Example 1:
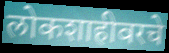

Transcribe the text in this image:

लोकशाहीवरचे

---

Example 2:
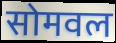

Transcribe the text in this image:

सोमवल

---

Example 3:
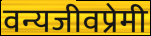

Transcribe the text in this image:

वन्यजीवप्रेमी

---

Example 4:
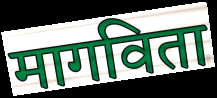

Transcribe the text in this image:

मागविता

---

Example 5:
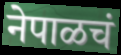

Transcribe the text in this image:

नेपाळचं